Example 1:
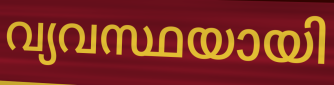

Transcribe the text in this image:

വ്യവസ്ഥയായി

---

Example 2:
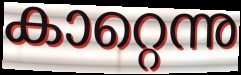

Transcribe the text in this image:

കാറ്റെന്നു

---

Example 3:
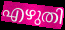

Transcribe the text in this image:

എഴുതി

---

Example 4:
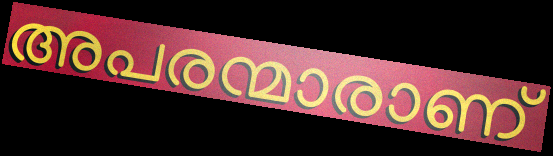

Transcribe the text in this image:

അപരന്മാരാണ്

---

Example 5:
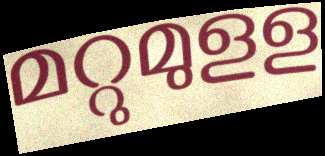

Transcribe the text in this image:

മറ്റുമുളള